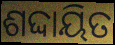
ଶଦ୍ଦାୟିତ